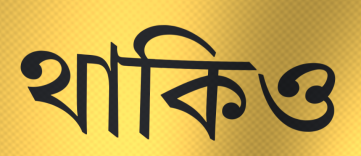
থাকিও